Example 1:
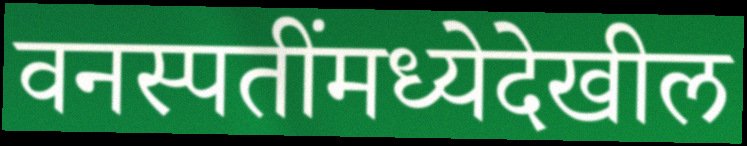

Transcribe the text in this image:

वनस्पतींमध्येदेखील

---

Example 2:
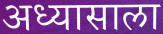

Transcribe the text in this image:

अध्यासाला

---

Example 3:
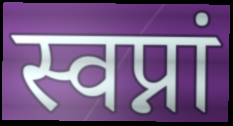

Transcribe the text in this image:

स्वप्नां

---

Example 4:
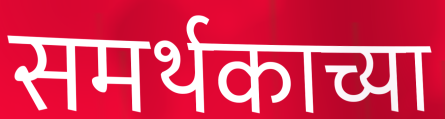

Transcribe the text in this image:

समर्थकाच्या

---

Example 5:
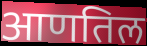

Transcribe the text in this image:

आणतिल